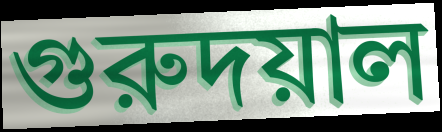
গুরুদয়াল